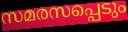
സമരസപ്പെടും